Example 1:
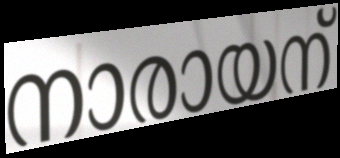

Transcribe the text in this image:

നാരായന്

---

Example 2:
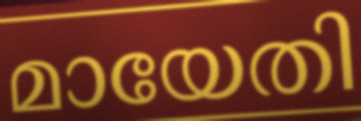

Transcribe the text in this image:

മായേതി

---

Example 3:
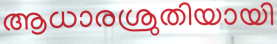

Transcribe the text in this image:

ആധാരശ്രുതിയായി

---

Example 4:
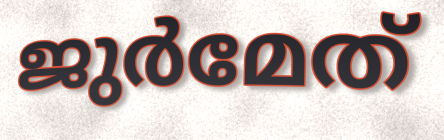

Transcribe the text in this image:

ജുർമേത്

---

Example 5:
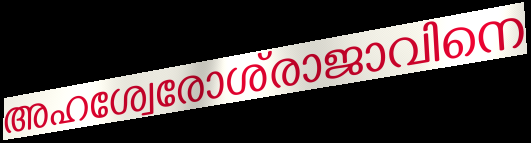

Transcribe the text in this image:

അഹശ്വേരോശ്‌രാജാവിനെ